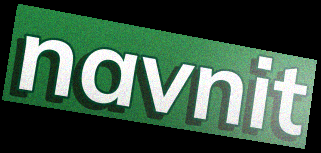
navnit